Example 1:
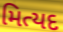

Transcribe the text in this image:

મિત્યદ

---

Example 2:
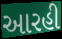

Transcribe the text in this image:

આરહી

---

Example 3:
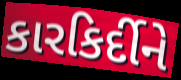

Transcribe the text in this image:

કારકિર્દીને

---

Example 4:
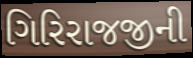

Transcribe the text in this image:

ગિરિરાજજીની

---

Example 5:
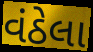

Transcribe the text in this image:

વંઠેલા